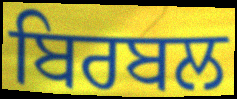
ਬਿਰਬਲ